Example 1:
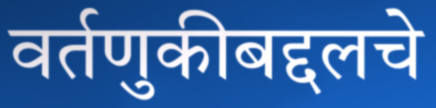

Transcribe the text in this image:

वर्तणुकीबद्दलचे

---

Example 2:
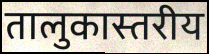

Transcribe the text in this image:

तालुकास्तरीय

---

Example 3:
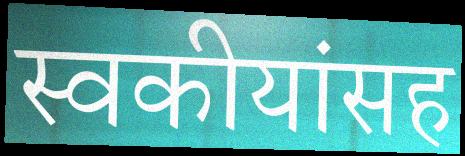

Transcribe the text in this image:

स्वकीयांसह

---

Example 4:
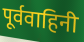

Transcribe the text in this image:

पूर्ववाहिनी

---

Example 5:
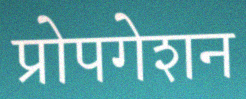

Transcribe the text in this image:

प्रोपगेशन